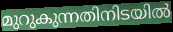
മുറുകുന്നതിനിടയിൽ